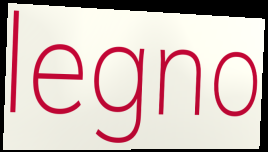
legno